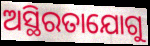
ଅସ୍ଥିରତାଯୋଗୁ